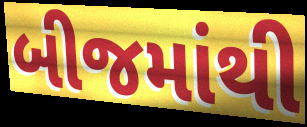
બીજમાંથી